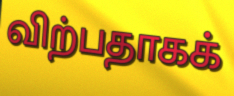
விற்பதாகக்